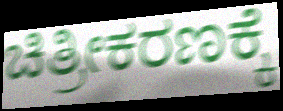
ಚಿತ್ರೀಕರಣಕ್ಕೆ